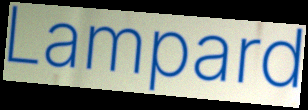
Lampard